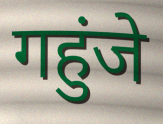
गहुंजे